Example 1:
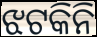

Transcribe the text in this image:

ଝଟକିନି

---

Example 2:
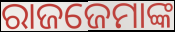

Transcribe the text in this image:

ରାଜଜେମାଙ୍କ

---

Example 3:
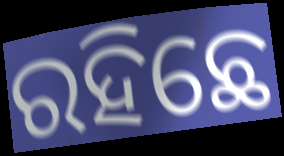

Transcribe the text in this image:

ରହିଛେ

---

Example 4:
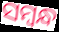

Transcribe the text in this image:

ସମ୍ୱନ୍ଧ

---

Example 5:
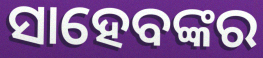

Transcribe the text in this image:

ସାହେବଙ୍କର